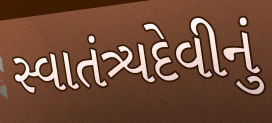
સ્વાતંત્ર્યદેવીનું